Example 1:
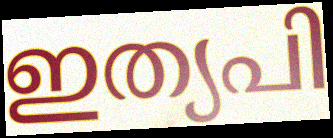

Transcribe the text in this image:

ഇത്യപി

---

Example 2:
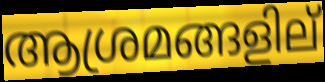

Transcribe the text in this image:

ആശ്രമങ്ങളില്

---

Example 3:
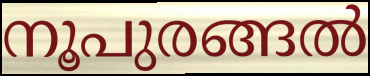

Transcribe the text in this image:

നൂപുരങ്ങൽ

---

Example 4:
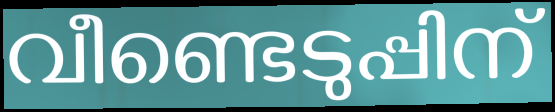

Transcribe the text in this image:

വീണ്ടെടുപ്പിന്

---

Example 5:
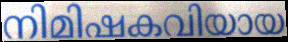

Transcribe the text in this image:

നിമിഷകവിയായ